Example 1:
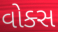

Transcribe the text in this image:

વોક્સ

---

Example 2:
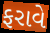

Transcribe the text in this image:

ફરાવે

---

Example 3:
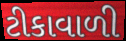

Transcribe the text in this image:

ટીકાવાળી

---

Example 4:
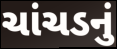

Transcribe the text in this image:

ચાંચડનું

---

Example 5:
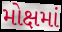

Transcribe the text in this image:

મોક્ષમાં